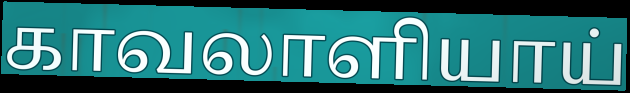
காவலாளியாய்